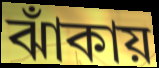
ঝাঁকায়